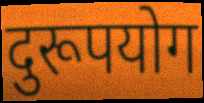
दुरूपयोग